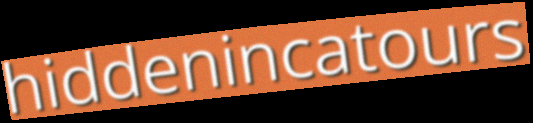
hiddenincatours